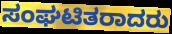
ಸಂಘಟಿತರಾದರು